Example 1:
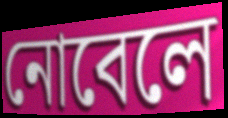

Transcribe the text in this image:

নোবেলে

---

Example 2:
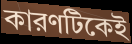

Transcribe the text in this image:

কারণটিকেই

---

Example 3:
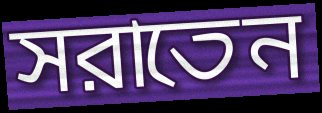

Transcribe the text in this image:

সরাতেন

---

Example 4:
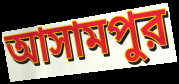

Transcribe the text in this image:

আসামপুর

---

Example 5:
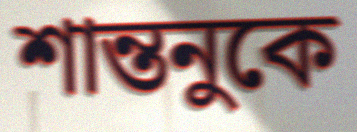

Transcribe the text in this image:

শান্তনুকে